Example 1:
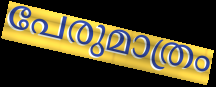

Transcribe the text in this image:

പേരുമാത്രം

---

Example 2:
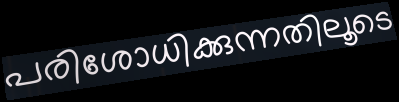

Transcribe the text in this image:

പരിശോധിക്കുന്നതിലൂടെ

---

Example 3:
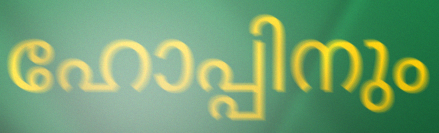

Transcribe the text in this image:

ഹോപ്പിനും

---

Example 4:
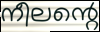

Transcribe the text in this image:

നീലന്റെ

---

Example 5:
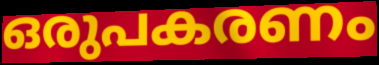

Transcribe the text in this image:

ഒരുപകരണം